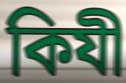
কিযী